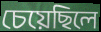
চেয়েছিলে